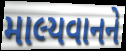
માલ્યવાનને